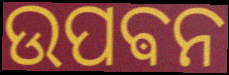
ଉପଵନ